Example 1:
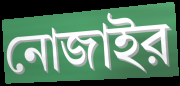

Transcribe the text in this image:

নোজাইর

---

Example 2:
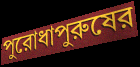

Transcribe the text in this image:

পুরোধাপুরুষের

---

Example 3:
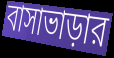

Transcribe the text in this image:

বাসাভাড়ার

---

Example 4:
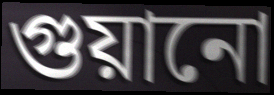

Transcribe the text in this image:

গুয়ানো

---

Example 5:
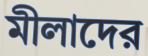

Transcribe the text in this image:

মীলাদের